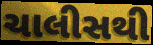
ચાલીસથી